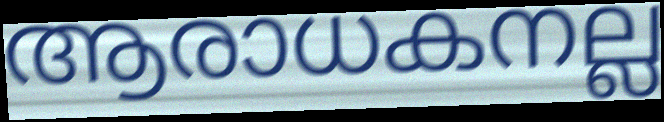
ആരാധകനല്ല